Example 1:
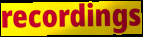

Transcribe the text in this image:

recordings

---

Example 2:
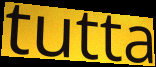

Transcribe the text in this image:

tutta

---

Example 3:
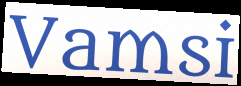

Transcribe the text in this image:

Vamsi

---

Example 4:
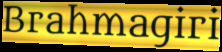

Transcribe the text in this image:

Brahmagiri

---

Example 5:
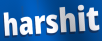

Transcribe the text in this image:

harshit